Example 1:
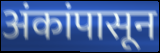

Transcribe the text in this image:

अंकांपासून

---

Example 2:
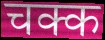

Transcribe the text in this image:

चक्‍क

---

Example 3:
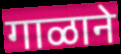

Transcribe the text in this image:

गाळाने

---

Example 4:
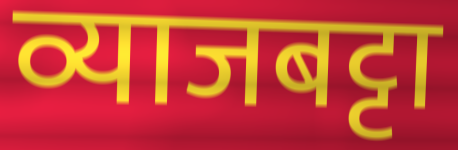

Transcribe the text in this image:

व्याजबट्टा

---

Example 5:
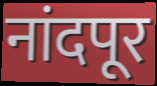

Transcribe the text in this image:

नांदपूर